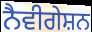
ਨੈਵੀਗੇਸ਼ਨ